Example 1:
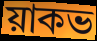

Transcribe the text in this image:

য়াকভ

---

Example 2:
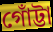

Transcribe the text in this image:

গোঁট্টা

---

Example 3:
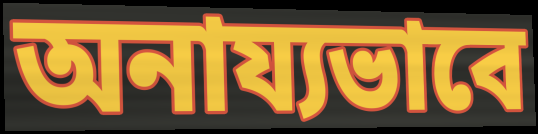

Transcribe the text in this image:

অনায্যভাবে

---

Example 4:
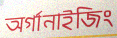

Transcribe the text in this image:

অর্গানাইজিং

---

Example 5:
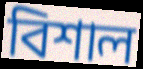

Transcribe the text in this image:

বিশাল